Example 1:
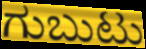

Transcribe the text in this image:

ಗುಬುಟು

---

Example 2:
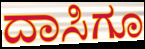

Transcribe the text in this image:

ದಾಸಿಗೂ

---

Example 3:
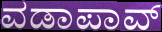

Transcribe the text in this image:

ವಡಾಪಾವ್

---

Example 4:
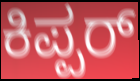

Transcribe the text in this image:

ಕಿಪ್ಪರ್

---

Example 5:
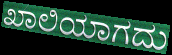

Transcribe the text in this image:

ಖಾಲಿಯಾಗದು